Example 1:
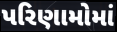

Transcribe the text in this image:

પરિણામોમાં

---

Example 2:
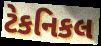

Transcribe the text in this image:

ટેકનિકલ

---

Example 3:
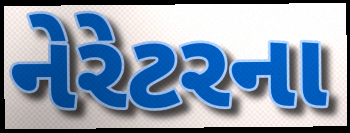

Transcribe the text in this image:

નેરેટરના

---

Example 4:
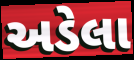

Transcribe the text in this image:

અડેલા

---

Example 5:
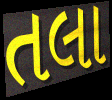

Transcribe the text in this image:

તલા